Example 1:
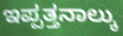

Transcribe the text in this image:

ಇಪ್ಪತ್ತನಾಲ್ಕು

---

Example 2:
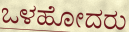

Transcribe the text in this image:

ಒಳಹೋದರು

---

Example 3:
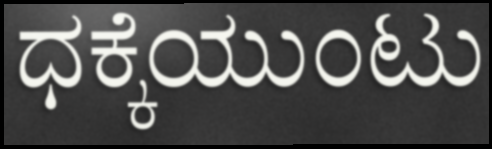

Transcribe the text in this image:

ಧಕ್ಕೆಯುಂಟು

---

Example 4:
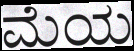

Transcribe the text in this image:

ಮೆಯ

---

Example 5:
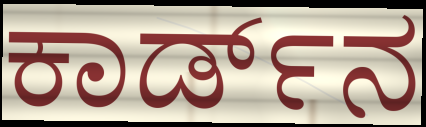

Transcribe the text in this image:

ಕಾರ್ಡ್‌ನ